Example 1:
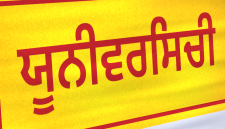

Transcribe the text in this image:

ਯੂਨੀਵਰਸਿਚੀ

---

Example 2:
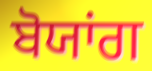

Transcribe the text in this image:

ਬੋਯਾਂਗ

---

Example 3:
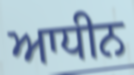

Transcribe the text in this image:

ਆਧੀਨ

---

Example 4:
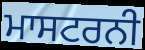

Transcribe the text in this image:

ਮਾਸਟਰਨੀ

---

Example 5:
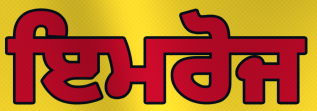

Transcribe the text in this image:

ਇਮਰੋਜ